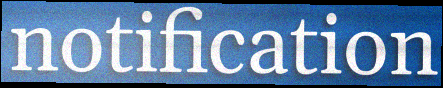
notification